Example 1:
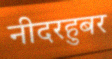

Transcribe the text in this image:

नीदरहुबर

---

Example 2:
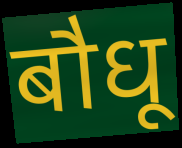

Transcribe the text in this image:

बौधू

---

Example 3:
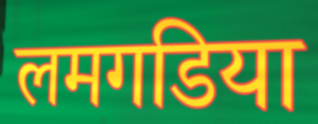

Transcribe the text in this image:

लमगडिया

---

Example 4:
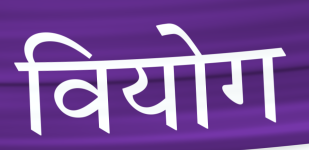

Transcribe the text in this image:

वियोग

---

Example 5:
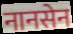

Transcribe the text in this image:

नानसेन